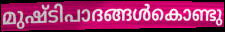
മുഷ്ടിപാദങ്ങൾകൊണ്ടു